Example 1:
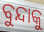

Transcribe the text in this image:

ବୁନ୍ଦାକୁ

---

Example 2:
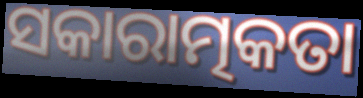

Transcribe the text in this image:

ସକାରାତ୍ମକତା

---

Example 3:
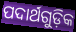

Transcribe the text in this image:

ପଦାର୍ଥଗୁଡ଼ିକ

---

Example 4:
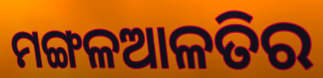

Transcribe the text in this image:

ମଙ୍ଗଳଆଳତିର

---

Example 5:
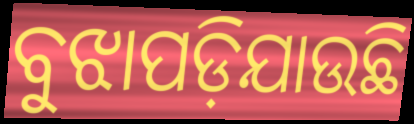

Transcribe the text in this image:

ବୁଝାପଡ଼ିଯାଉଛି